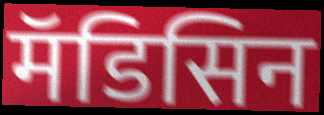
मॅडिसिन